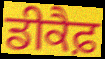
ਡੀਕੈਫ਼